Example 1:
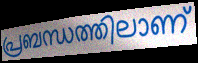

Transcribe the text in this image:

പ്രബന്ധത്തിലാണ്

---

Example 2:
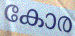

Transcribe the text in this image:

കോര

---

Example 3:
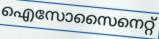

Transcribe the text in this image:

ഐസോസൈനെറ്റ്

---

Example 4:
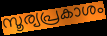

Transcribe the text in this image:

സൂര്യപ്രകാശം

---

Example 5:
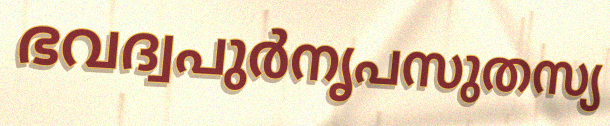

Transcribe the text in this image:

ഭവദ്വപുർനൃപസുതസ്യ